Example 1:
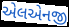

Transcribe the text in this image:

એલએનજી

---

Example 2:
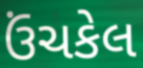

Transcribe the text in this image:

ઉંચકેલ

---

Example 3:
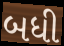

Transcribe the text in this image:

બધી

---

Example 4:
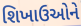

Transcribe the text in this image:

શિખાઉઓને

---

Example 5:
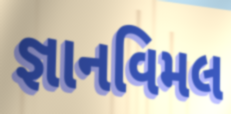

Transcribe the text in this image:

જ્ઞાનવિમલ